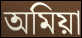
অমিয়া